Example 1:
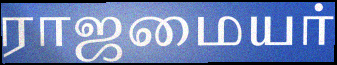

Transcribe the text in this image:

ராஜமையர்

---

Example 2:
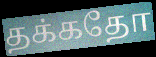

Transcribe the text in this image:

தக்கதோ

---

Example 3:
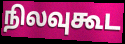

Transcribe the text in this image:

நிலவுகூட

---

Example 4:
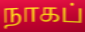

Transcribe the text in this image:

நாகப்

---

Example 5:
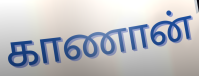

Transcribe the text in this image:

காணான்